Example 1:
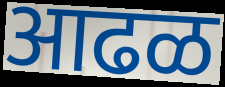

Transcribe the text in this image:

आढळ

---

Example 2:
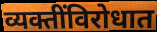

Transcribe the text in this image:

व्यक्तींविरोधात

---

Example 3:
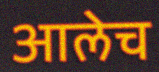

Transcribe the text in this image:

आलेच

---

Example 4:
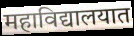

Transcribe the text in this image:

महाविद्यालयात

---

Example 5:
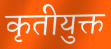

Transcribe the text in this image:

कृतीयुक्त